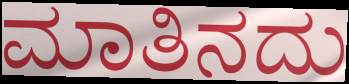
ಮಾತಿನದು